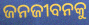
ଜନଜୀବନକୁ